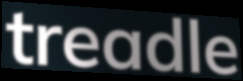
treadle